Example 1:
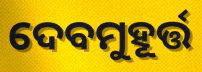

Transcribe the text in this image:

ଦେବମୁହୂର୍ତ୍ତ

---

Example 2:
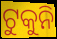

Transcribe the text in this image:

ଟୁକୁନି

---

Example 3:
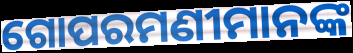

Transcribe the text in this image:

ଗୋପରମଣୀମାନଙ୍କ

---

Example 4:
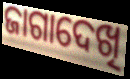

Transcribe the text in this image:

ଜାଗାଦେଖି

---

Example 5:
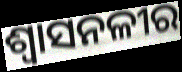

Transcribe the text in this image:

ଶ୍ୱାସନଳୀର